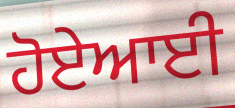
ਹੋਏਆਈ